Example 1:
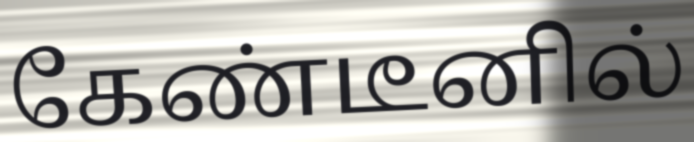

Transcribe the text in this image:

கேண்டீனில்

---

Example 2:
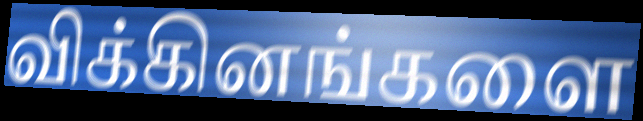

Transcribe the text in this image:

விக்கினங்களை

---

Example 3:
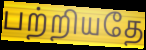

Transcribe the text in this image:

பற்றியதே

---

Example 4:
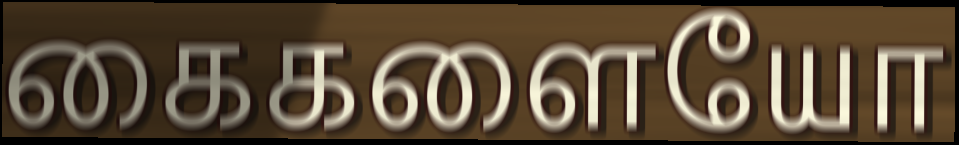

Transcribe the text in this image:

கைகளையோ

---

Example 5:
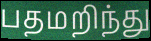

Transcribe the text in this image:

பதமறிந்து